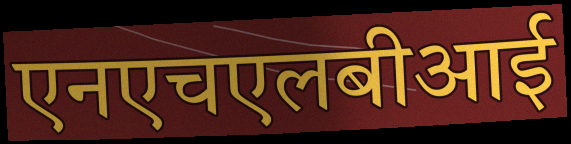
एनएचएलबीआई